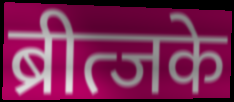
ब्रीत्जके